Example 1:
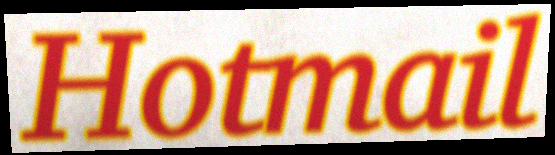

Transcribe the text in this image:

Hotmail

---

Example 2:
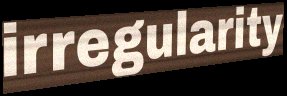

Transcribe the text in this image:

irregularity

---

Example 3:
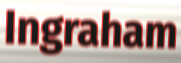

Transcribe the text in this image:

Ingraham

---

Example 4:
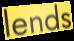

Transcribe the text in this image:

lends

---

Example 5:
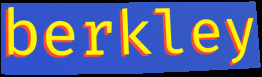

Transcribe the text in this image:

berkley